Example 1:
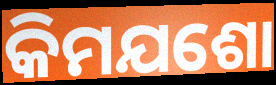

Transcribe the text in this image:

କିମଯଶୋ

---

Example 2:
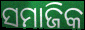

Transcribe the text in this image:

ସମାଜିକ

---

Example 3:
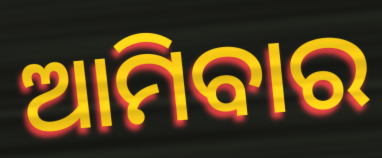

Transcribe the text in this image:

ଆମିବାର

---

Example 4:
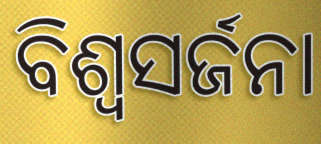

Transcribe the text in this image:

ବିଶ୍ଵସର୍ଜନା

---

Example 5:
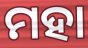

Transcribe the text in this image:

ମହା